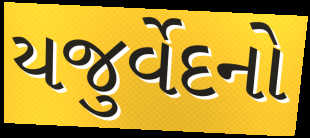
યજુર્વેદનો